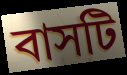
বাসটি